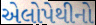
એલોપેથીનો